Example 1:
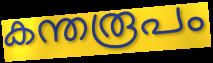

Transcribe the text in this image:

കന്തരൂപം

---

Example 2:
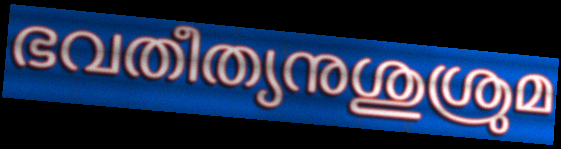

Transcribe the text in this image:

ഭവതീത്യനുശുശ്രുമ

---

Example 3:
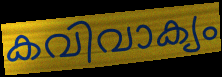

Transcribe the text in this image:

കവിവാക്യം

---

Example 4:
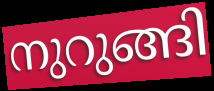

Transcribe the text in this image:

നുറുങ്ങി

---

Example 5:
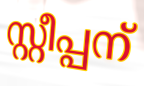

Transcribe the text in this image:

സ്റ്റീപ്പന്